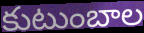
కుటుంబాల